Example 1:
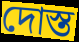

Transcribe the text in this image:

দোস্ত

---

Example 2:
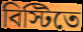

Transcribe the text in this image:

বিস্টিতে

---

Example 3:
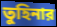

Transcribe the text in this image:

তুহিনার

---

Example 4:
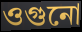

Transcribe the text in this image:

ওগুনো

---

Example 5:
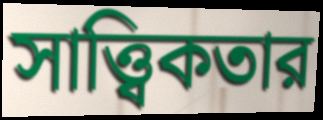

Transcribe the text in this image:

সাত্ত্বিকতার